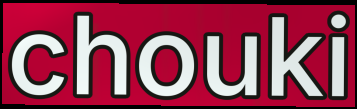
chouki